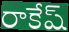
రాకేష్